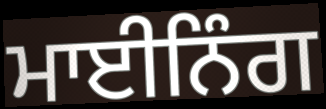
ਮਾਈਨਿੰਗ